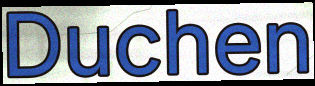
Duchen